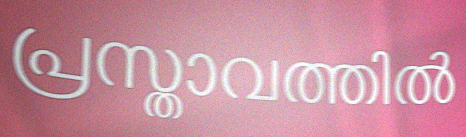
പ്രസ്താവത്തിൽ